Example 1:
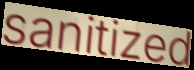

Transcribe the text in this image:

sanitized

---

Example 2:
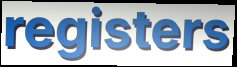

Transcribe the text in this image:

registers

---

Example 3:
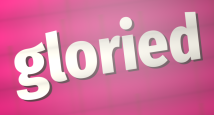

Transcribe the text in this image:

gloried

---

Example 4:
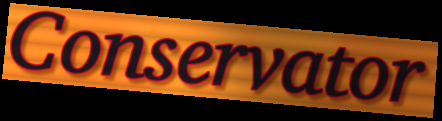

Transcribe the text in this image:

Conservator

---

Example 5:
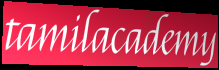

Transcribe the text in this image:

tamilacademy